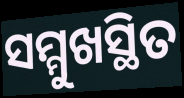
ସମ୍ମୁଖସ୍ଥିତ